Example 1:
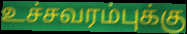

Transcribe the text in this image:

உச்சவரம்புக்கு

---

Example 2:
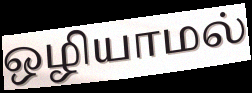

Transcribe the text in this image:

ஒழியாமல்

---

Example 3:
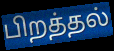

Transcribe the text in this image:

பிறத்தல்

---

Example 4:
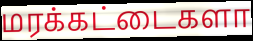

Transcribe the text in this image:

மரக்கட்டைகளா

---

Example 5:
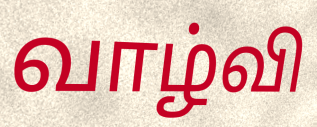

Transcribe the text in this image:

வாழ்வி